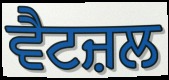
ਵੈਟਜ਼ਲ